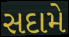
સદામે